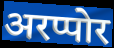
अरप्पोर